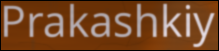
Prakashkiy